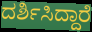
ದರ್ಶಿಸಿದ್ದಾರೆ